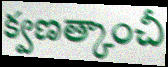
క్వణత్కాంచీ